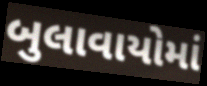
બુલાવાયોમાં